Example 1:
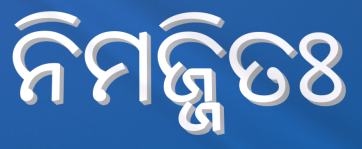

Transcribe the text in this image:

ନିମଜ୍ଜିତଃ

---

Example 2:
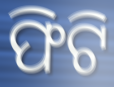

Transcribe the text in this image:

ଫିଟି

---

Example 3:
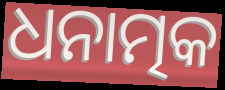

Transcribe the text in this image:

ଧନାତ୍ମକ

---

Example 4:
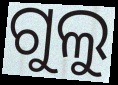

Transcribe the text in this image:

ଗୁଲୁ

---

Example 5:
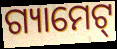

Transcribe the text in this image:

ଗ୍ୟାମେଟ୍